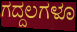
ಗದ್ದಲಗಳೂ